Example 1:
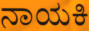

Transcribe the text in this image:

ನಾಯಕಿ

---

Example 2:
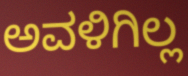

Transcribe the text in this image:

ಅವಳಿಗಿಲ್ಲ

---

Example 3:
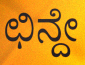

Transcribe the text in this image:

ಛಿನ್ದೇ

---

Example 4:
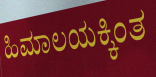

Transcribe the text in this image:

ಹಿಮಾಲಯಕ್ಕಿಂತ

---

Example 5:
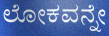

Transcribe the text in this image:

ಲೋಕವನ್ನೇ